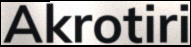
Akrotiri